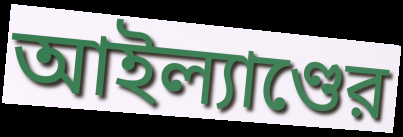
আইল্যাণ্ডের